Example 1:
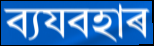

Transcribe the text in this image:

ব্যযবহাৰ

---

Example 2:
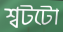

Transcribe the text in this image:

শ্বটটো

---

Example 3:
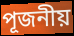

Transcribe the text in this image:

পূজনীয়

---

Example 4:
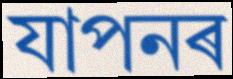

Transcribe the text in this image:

যাপনৰ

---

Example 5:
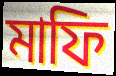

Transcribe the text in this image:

মাফি